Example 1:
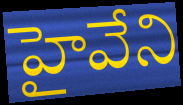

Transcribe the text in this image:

హైవేని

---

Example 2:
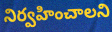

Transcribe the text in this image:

నిర్వహించాలని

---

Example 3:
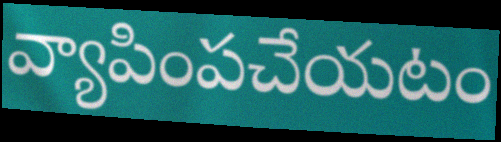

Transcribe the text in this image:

వ్యాపింపచేయటం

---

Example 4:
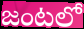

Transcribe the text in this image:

జంటలో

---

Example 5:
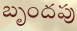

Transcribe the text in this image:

బృందపు